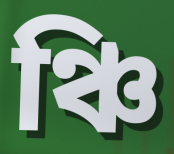
ঞ্চি